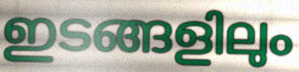
ഇടങ്ങളിലും